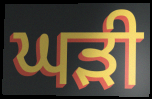
ਘਡ਼ੀ